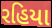
રહિયા